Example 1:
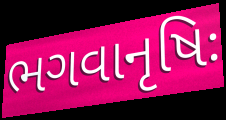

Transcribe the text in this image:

ભગવાનૃષિઃ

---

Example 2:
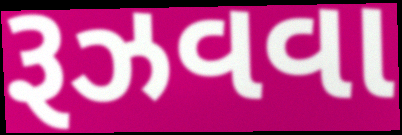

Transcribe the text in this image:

રૂઝવવા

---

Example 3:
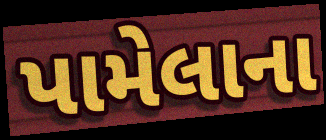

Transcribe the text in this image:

પામેલાના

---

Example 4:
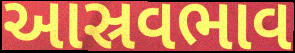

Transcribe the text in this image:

આસ્રવભાવ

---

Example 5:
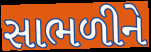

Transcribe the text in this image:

સાભળીને